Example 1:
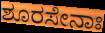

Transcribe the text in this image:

ಶೂರಸೇನಾಃ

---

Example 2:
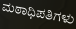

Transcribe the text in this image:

ಮಠಾಧಿಪತಿಗಳು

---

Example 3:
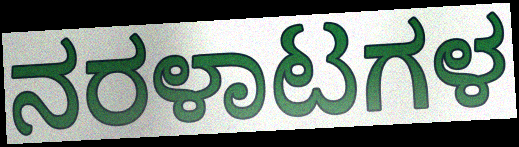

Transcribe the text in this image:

ನರಳಾಟಗಳ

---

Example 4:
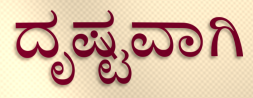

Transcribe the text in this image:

ದೃಷ್ಟವಾಗಿ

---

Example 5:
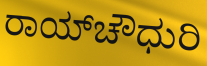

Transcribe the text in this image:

ರಾಯ್‌ಚೌಧುರಿ